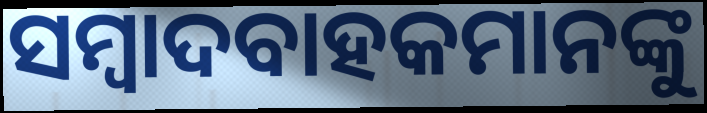
ସମ୍ବାଦବାହକମାନଙ୍କୁ